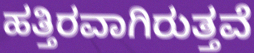
ಹತ್ತಿರವಾಗಿರುತ್ತವೆ